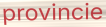
provincie